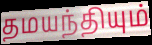
தமயந்தியும்